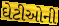
ઘેટીઓની